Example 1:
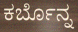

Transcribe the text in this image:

ಕರ್ಬೊನ್ನ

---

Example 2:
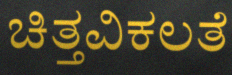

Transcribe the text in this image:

ಚಿತ್ತವಿಕಲತೆ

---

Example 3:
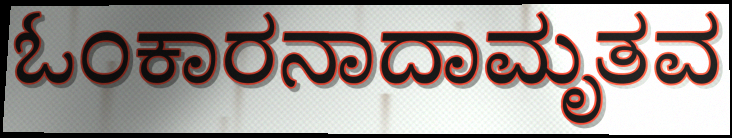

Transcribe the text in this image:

ಓಂಕಾರನಾದಾಮೃತವ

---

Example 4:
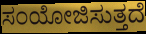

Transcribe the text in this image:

ಸಂಯೋಜಿಸುತ್ತದೆ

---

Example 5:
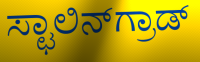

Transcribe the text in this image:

ಸ್ಟಾಲಿನ್‌ಗ್ರಾಡ್